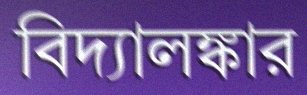
বিদ্যালঙ্কার